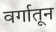
वर्गातून